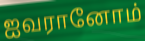
ஐவரானோம்